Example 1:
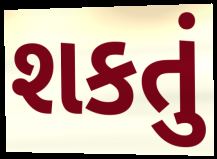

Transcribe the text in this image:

શકતું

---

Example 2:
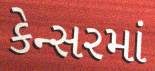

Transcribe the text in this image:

કેન્સરમાં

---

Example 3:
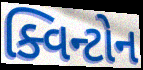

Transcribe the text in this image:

ક્વિન્ટોન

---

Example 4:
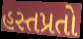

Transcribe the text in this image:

હસ્તપ્રતો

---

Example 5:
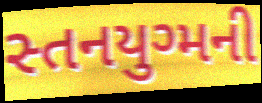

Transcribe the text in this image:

સ્તનયુગ્મની